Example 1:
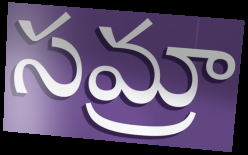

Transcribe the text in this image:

సమ్రా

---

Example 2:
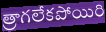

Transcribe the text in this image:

త్రాగలేకపోయిరి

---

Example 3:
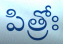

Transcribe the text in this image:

పిత్రోః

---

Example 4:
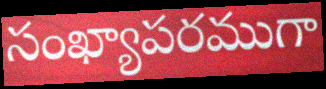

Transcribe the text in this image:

సంఖ్యాపరముగా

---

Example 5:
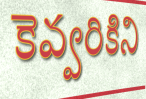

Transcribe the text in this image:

కెవ్వరికిని